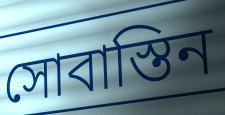
সোবাস্তিন